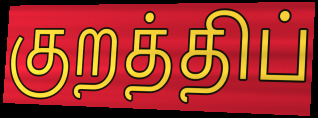
குறத்திப்